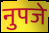
नुपजे